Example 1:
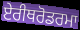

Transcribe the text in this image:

ਏਰੀਥਰੋਡਰਮਾ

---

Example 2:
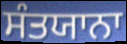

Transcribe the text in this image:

ਸੰਤਯਾਨਾ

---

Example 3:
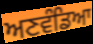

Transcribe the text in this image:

ਅਣਵੰਡਿਆ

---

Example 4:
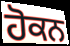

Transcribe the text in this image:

ਹੋਕਨ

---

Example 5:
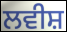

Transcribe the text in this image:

ਲਵੀਸ਼